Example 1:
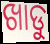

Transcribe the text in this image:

ଖାଡୁ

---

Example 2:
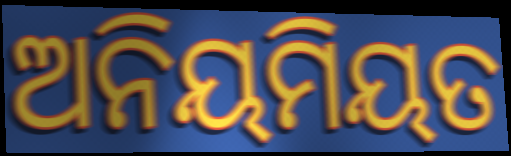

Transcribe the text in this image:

ଅନିୟମିୟତ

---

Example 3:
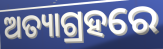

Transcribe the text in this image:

ଅତ୍ୟାଗ୍ରହରେ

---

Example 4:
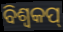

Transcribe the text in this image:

ବିଶ୍ବକପ୍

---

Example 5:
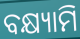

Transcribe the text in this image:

ବକ୍ଷ୍ୟାମି